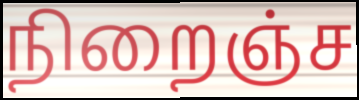
நிறைஞ்ச